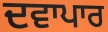
ਦਵਾਪਾਰ